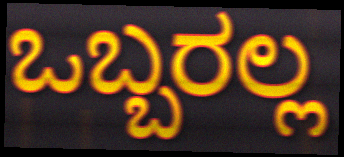
ಒಬ್ಬರಲ್ಲ